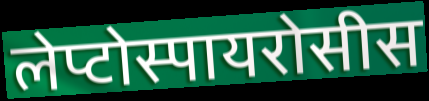
लेप्टोस्पायरोसीस